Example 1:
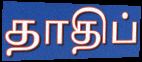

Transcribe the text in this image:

தாதிப்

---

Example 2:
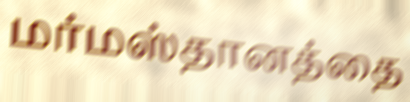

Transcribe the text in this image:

மர்மஸ்தானத்தை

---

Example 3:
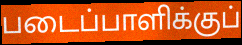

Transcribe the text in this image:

படைப்பாளிக்குப்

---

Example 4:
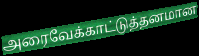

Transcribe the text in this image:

அரைவேக்காட்டுத்தனமான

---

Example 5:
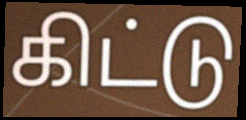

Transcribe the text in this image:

கிட்டு